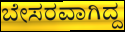
ಬೇಸರವಾಗಿದ್ದ